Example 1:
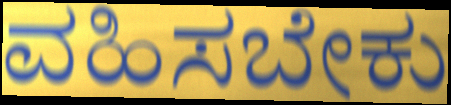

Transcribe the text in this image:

ವಹಿಸಬೇಕು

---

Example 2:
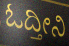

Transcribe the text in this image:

ಓದ್ತೀನಿ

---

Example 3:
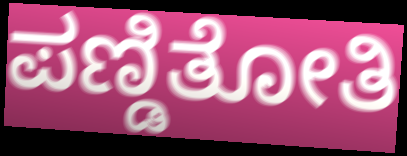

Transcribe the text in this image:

ಪಣ್ಡಿತೋತಿ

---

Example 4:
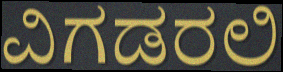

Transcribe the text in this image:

ವಿಗಡರಲಿ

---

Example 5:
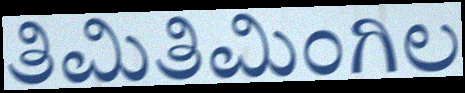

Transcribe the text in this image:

ತಿಮಿತಿಮಿಂಗಿಲ